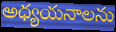
అధ్యయనాలను